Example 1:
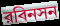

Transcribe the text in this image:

রবিনসন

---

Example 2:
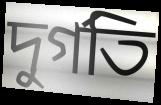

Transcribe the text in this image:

দুর্গতি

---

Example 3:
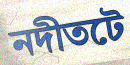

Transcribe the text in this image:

নদীতটে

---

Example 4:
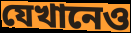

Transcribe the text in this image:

যেখানেও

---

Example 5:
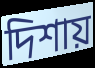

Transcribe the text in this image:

দিশায়